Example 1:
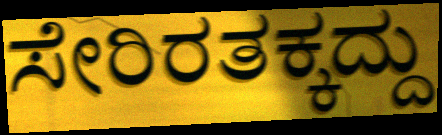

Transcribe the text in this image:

ಸೇರಿರತಕ್ಕದ್ದು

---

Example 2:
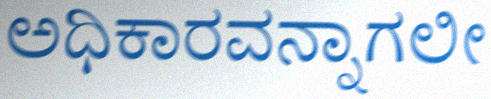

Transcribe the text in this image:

ಅಧಿಕಾರವನ್ನಾಗಲೀ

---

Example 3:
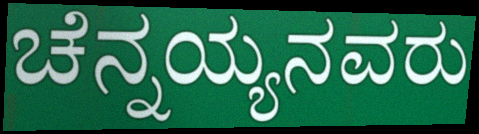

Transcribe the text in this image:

ಚೆನ್ನಯ್ಯನವರು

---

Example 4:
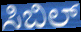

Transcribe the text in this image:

ಸಿಬಿಲ್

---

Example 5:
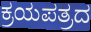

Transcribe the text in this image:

ಕ್ರಯಪತ್ರದ